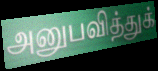
அனுபவித்துக்